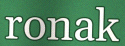
ronak